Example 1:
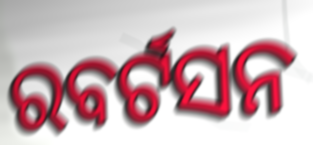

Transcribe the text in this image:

ରବର୍ଟସନ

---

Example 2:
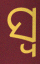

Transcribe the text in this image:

ସ୍ୱ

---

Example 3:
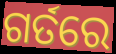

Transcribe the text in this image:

ଗର୍ତରେ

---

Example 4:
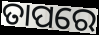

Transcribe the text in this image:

ତାପରେ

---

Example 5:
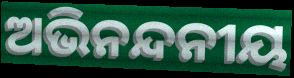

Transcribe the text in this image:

ଅଭିନନ୍ଦନୀୟ